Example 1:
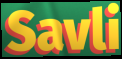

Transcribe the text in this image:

Savli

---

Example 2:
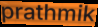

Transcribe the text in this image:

prathmik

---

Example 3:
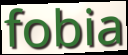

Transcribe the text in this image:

fobia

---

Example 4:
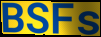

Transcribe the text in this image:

BSFs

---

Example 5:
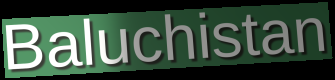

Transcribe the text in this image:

Baluchistan